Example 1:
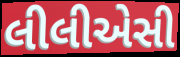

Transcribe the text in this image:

લીલીએસી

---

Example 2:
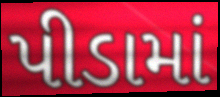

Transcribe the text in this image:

પીડામાં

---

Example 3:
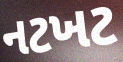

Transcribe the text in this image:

નટખટ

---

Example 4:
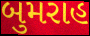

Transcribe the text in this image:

બુમરાહ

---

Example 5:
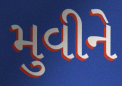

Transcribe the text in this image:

મુવીને